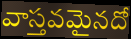
వాస్తవమైనదో